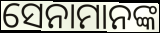
ସେନାମାନଙ୍କ